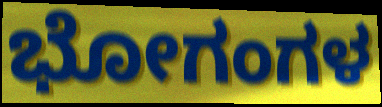
ಭೋಗಂಗಳ